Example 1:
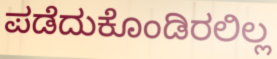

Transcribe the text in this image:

ಪಡೆದುಕೊಂಡಿರಲಿಲ್ಲ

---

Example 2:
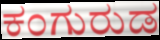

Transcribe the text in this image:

ಕಂಗುರುಡ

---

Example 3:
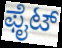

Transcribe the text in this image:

ಫೈಟ್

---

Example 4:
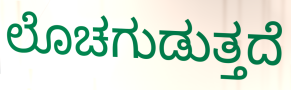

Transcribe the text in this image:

ಲೊಚಗುಡುತ್ತದೆ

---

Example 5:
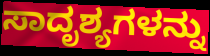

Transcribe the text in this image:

ಸಾದೃಶ್ಯಗಳನ್ನು